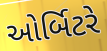
ઓર્બિટરે